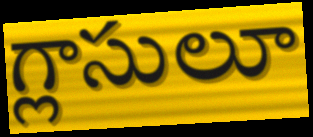
గ్లాసులూ